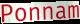
Ponnam